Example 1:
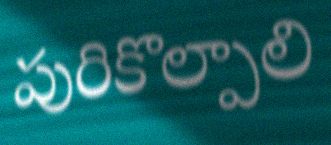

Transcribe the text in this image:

పురికొల్పాలి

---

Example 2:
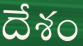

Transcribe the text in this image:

దేశం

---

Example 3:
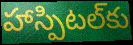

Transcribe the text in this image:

హాస్పిటల్‌కు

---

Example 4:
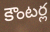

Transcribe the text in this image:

కౌంటర్ల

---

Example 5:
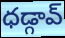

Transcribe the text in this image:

ధడ్గావ్